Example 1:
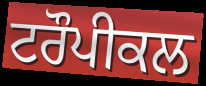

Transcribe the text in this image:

ਟਰੌਪੀਕਲ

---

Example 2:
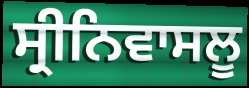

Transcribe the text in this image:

ਸ੍ਰੀਨਿਵਾਸਲੂ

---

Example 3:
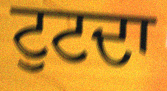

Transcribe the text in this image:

ਟੁਟਦਾ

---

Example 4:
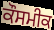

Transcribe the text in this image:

ਕੌਸਮੀਕ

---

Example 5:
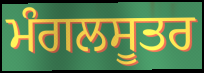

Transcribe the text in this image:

ਮੰਗਲਸੂਤਰ